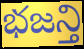
భజన్తి